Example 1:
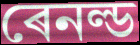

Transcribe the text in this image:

ৰেনল্ড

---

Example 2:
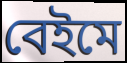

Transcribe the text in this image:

বেইমে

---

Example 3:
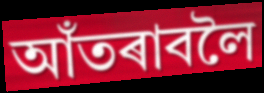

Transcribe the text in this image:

আঁতৰাবলৈ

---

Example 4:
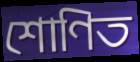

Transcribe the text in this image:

শোণিত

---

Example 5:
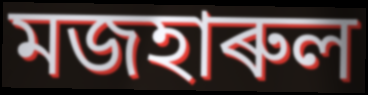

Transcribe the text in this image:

মজহাৰুল